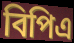
বিপিএ